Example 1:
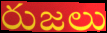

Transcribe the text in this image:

రుజలు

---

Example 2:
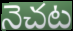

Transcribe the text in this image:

నెచట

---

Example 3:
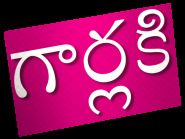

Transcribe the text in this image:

గార్లకి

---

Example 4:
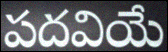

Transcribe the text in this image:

పదవియే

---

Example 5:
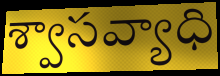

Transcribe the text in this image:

శ్వాసవ్యాధి